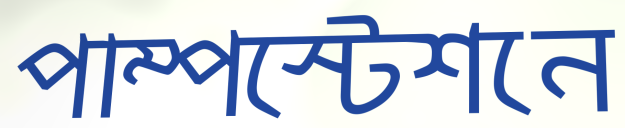
পাম্পস্টেশনে